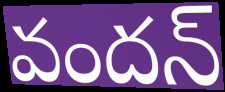
వందన్